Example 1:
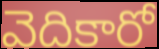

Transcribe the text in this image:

వెదికారో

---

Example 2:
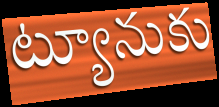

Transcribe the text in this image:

ట్యూనుకు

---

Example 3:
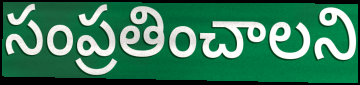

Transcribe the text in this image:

సంప్రతించాలని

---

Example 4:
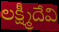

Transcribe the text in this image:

లక్ష్మీదేవి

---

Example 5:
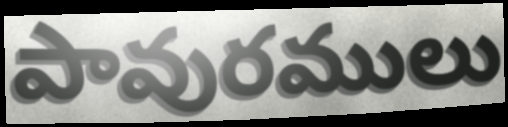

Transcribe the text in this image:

పావురములు